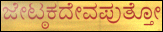
ಜೇಟ್ಠಕದೇವಪುತ್ತೋ